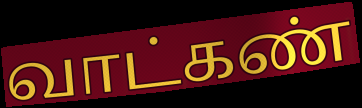
வாட்கண்